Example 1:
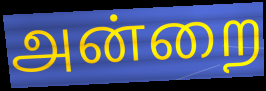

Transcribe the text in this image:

அன்றை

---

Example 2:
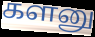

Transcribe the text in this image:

களனு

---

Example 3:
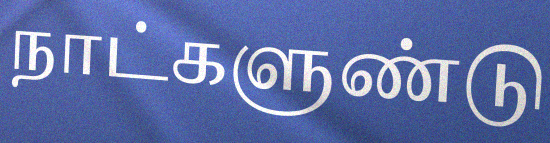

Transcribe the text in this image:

நாட்களுண்டு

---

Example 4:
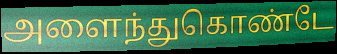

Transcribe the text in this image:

அளைந்துகொண்டே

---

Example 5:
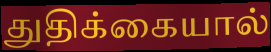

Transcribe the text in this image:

துதிக்கையால்